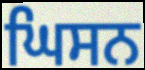
ਘਿਸਨ